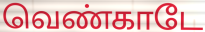
வெண்காடே